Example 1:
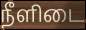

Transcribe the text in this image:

நீளிடை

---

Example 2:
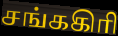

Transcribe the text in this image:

சங்ககிரி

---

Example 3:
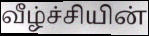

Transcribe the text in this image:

வீழ்ச்சியின்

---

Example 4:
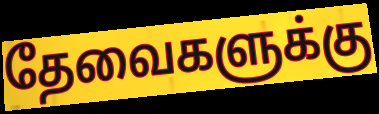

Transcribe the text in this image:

தேவைகளுக்கு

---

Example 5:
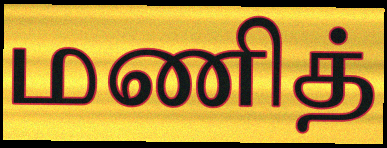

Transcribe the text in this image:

மணித்